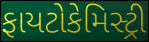
ફાયટોકેમિસ્ટ્રી